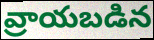
వ్రాయబడిన